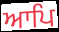
ਆਪਿ